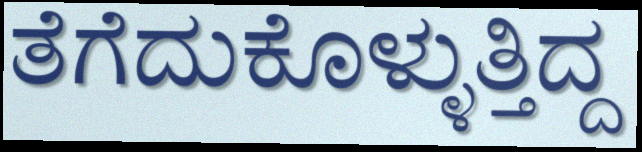
ತೆಗೆದುಕೊಳ್ಳುತ್ತಿದ್ದ